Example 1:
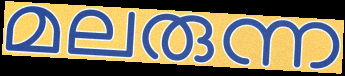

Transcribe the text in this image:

മലരുന്ന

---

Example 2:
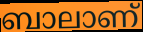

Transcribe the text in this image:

ബാലാണ്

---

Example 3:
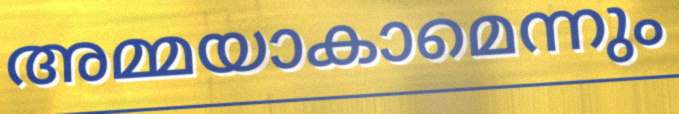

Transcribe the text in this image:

അമ്മയാകാമെന്നും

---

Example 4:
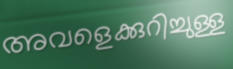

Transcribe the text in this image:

അവളെക്കുറിച്ചുള്ള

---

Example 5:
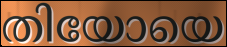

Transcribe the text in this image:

തിയോയെ